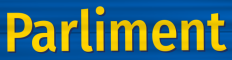
Parliment